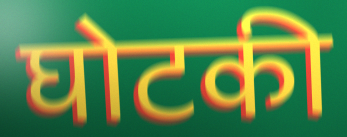
घोटकी